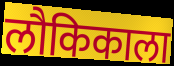
लौकिकाला